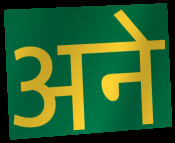
अने